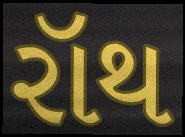
રૉથ